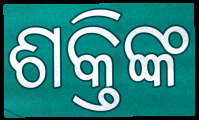
ଶକ୍ତିଙ୍କ